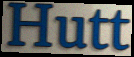
Hutt